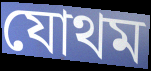
যোথম